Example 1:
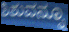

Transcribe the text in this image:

ಶಿಶುವನ್ನೂ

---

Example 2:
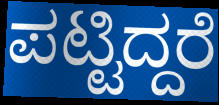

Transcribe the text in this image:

ಪಟ್ಟಿದ್ದರೆ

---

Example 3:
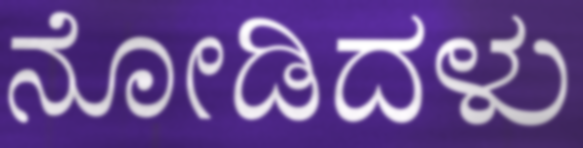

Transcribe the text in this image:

ನೋಡಿದಳು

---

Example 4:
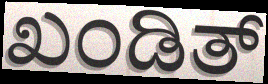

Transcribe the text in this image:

ಖಂಡಿತ್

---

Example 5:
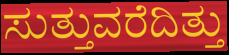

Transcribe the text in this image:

ಸುತ್ತುವರೆದಿತ್ತು